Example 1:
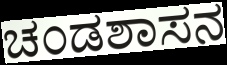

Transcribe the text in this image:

ಚಂಡಶಾಸನ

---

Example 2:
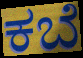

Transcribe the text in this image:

ಕಬೆ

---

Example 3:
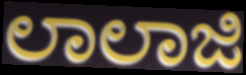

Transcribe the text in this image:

ಲಾಲಾಜಿ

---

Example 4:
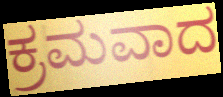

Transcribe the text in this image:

ಕ್ರಮವಾದ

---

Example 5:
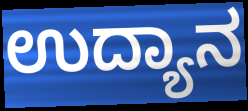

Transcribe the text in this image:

ಉದ್ಯಾನ